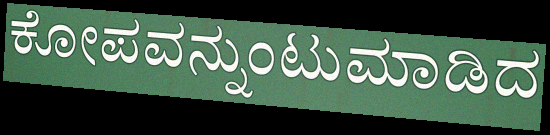
ಕೋಪವನ್ನುಂಟುಮಾಡಿದ